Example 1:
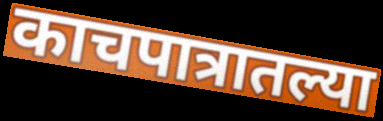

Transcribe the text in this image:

काचपात्रातल्या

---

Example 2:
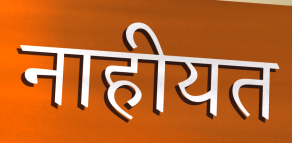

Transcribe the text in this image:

नाहीयत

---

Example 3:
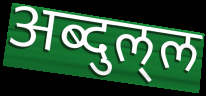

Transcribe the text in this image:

अब्दुल्ल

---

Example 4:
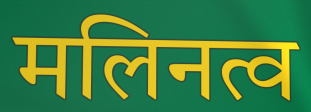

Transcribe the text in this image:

मलिनत्व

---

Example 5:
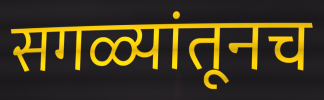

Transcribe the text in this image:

सगळ्यांतूनच